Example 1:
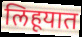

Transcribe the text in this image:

लिहूयात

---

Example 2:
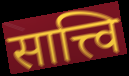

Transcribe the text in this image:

सात्त्वि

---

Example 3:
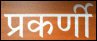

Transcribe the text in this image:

प्रकर्णी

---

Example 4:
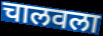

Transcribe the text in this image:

चालवला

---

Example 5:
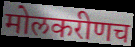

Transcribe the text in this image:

मोलकरीणच